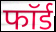
फॉर्ड